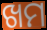
ଖମ